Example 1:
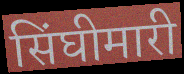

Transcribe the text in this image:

सिंघीमारी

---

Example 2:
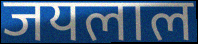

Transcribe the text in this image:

जयलाल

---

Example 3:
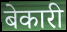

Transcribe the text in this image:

बेकारी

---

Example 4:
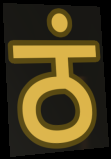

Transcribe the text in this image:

ठं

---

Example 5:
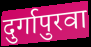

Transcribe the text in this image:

दुर्गापुरवा